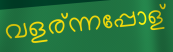
വളര്ന്നപ്പോള്